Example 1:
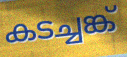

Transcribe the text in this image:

കടച്ചങ്ക്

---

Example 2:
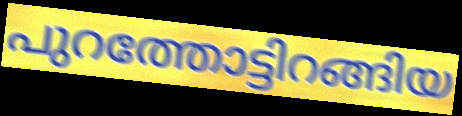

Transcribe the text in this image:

പുറത്തോട്ടിറങ്ങിയ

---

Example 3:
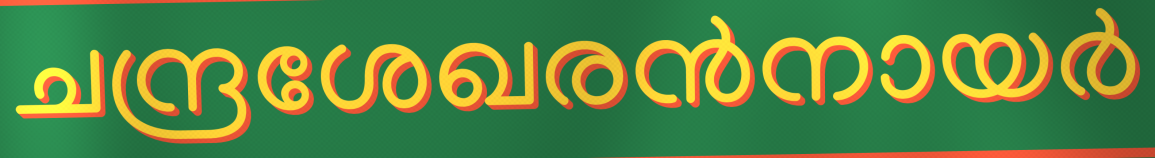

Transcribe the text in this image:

ചന്ദ്രശേഖരൻനായർ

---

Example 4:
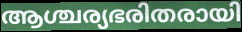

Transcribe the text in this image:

ആശ്ചര്യഭരിതരായി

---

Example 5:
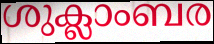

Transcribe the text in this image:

ശുക്ലാംബര